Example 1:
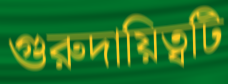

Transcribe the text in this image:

গুরুদায়িত্বটি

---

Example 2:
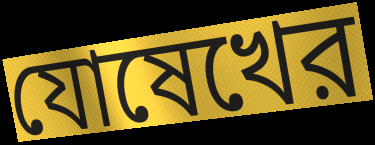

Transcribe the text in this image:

যোষেখের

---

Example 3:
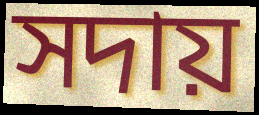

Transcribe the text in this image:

সদায়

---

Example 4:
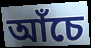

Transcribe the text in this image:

আঁচে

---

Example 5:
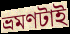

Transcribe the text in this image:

ভ্রমণটাই